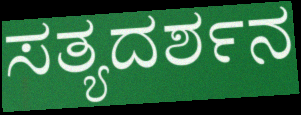
ಸತ್ಯದರ್ಶನ